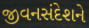
જીવનસંદેશને